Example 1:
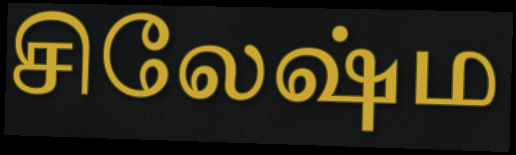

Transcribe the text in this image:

சிலேஷ்ம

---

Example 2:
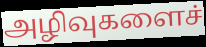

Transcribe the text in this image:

அழிவுகளைச்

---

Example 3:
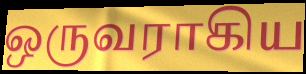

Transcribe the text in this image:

ஒருவராகிய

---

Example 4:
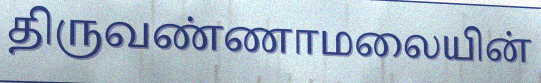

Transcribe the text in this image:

திருவண்ணாமலையின்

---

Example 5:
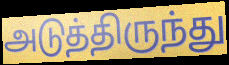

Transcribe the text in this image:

அடுத்திருந்து